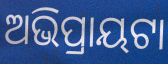
ଅଭିପ୍ରାୟଟା